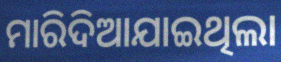
ମାରିଦିଆଯାଇଥିଲା